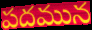
పదమున